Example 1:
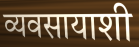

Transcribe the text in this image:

व्यवसायाशी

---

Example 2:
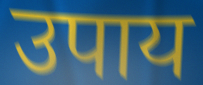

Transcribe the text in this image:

उपाय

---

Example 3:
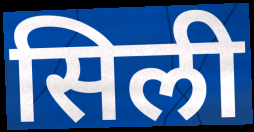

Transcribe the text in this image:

सिली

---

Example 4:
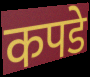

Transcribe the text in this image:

कपडे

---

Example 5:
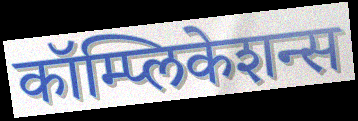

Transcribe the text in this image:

कॉम्प्लिकेशन्स